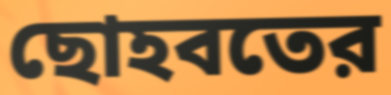
ছোহবতের